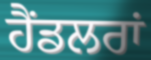
ਹੈਂਡਲਰਾਂ